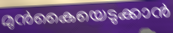
മുൻകൈയെടുക്കാൻ